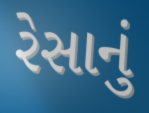
રેસાનું